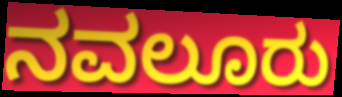
ನವಲೂರು